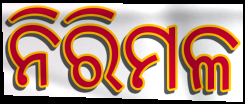
ନିରିମଳ